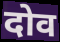
दोव